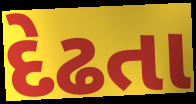
દેઢતા